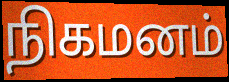
நிகமனம்